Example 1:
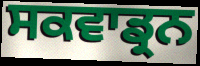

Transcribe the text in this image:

ਸਕਵਾਡ੍ਰਨ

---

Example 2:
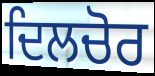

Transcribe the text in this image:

ਦਿਲਚੋਰ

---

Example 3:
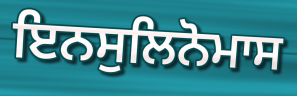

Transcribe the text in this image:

ਇਨਸੁਲਿਨੋਮਾਸ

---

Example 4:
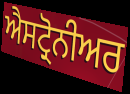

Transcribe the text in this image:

ਐਸਟ੍ਰੋਨੀਅਰ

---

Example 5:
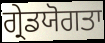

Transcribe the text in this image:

ਗ੍ਰੇਡਯੋਗਤਾ